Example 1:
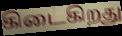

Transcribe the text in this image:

கிடைகிறது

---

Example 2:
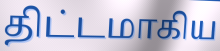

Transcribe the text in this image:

திட்டமாகிய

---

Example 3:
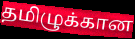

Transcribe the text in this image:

தமிழுக்கான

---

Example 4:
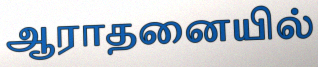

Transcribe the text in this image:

ஆராதனையில்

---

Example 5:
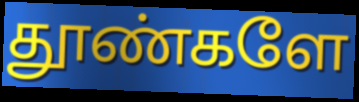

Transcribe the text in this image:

தூண்களே